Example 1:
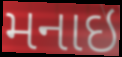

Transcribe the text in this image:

મનાઇ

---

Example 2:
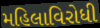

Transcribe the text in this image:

મહિલાવિરોધી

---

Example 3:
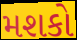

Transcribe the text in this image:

મશકો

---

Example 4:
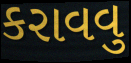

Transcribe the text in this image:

કરાવવુ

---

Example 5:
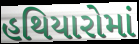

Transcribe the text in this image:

હથિયારોમાં